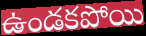
ఉండకపోయి